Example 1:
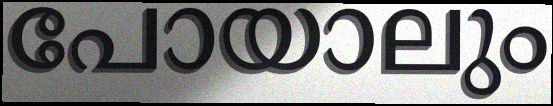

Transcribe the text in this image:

പോയാലും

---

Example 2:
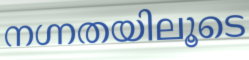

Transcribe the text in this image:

നഗ്നതയിലൂടെ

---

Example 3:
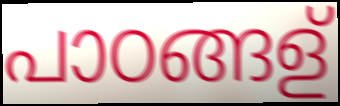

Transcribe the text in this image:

പാഠങ്ങള്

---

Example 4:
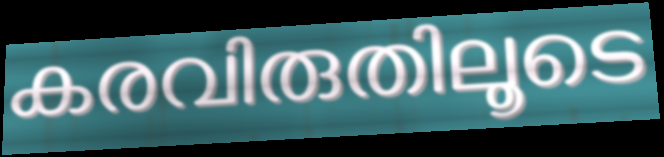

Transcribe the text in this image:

കരവിരുതിലൂടെ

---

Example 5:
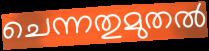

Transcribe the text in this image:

ചെന്നതുമുതൽ